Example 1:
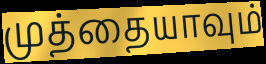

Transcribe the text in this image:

முத்தையாவும்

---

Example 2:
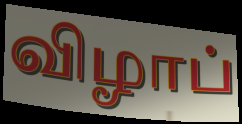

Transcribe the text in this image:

விழாப்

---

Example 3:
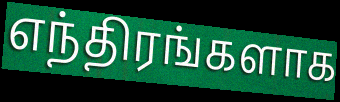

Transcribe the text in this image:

எந்திரங்களாக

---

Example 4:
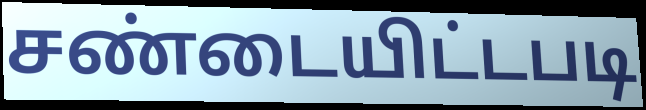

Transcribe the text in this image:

சண்டையிட்டபடி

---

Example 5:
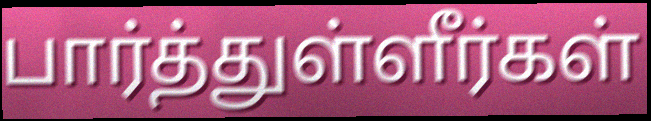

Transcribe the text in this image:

பார்த்துள்ளீர்கள்